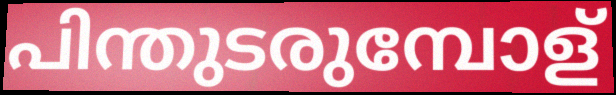
പിന്തുടരുമ്പോള്